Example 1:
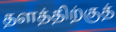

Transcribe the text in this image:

தளத்திற்குத்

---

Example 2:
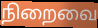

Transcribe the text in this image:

நிறைவை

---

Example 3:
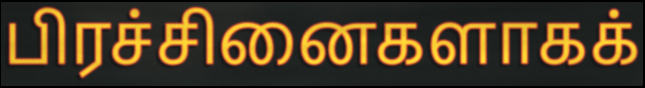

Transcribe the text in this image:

பிரச்சினைகளாகக்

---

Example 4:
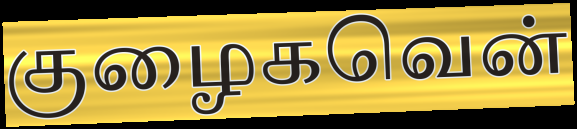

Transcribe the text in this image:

குழைகவென்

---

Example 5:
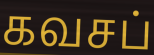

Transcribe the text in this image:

கவசப்